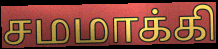
சமமாக்கி